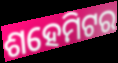
ଶହେମିଟର